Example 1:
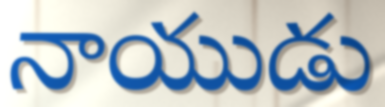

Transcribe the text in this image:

నాయుడు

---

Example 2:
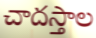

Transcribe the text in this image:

చాదస్తాల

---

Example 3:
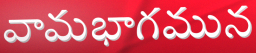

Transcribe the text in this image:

వామభాగమున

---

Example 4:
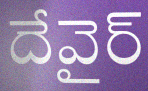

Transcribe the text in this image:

దేవైర్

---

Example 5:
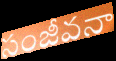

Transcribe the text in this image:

సంజీవనా